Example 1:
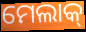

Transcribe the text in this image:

ମେଲାକ୍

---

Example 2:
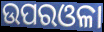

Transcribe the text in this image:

ଉପରଓଳା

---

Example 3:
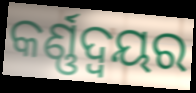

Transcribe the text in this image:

କର୍ଣ୍ଣଦ୍ୱୟର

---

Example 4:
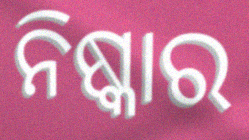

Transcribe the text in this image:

ନିଷ୍କାର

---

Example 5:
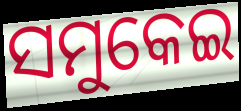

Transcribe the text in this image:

ସମୁକେଇ